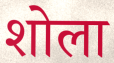
शोला